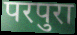
परपुरा